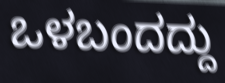
ಒಳಬಂದದ್ದು